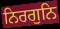
ਨਿਰਗੁਨਿ